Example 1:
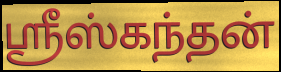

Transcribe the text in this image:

ஸ்ரீஸ்கந்தன்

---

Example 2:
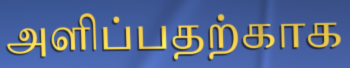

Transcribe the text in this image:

அளிப்பதற்காக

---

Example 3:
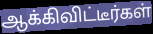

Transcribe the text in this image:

ஆக்கிவிட்டீர்கள்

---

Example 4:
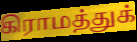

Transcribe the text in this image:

கிராமத்துக்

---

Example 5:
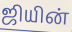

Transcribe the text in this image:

ஜியின்